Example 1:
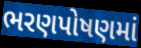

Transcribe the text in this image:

ભરણપોષણમાં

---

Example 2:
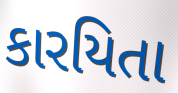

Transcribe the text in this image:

કારયિતા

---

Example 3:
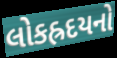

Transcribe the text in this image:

લોકહ્રદયનો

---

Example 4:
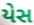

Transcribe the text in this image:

યેસ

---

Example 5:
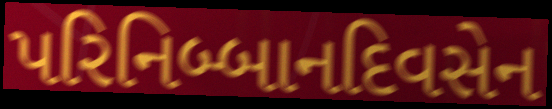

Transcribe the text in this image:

પરિનિબ્બાનદિવસેન